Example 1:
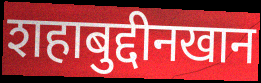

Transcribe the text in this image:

शहाबुद्दीनखान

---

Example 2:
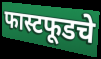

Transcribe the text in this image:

फास्टफूडचे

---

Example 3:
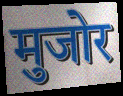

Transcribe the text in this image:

मुजोर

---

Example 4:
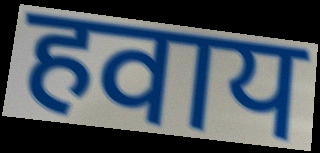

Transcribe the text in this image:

हवाय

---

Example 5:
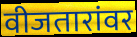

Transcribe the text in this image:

वीजतारांवर